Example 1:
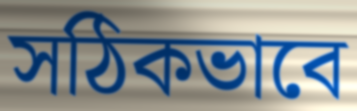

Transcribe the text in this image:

সঠিকভাবে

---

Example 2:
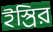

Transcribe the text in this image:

ইস্ত্রির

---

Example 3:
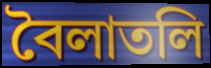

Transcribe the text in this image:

বৈলাতলি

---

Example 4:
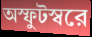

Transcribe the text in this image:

অস্ফুটস্বরে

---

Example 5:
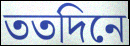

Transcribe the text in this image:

ততদিনে